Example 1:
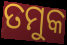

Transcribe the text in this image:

ତମୁକ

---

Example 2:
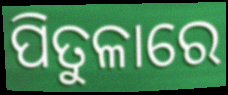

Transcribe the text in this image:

ପିତୁଳାରେ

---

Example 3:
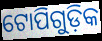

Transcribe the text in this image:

ଟୋପିଗୁଡ଼ିକ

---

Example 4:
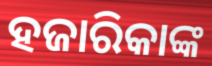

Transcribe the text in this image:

ହଜାରିକାଙ୍କ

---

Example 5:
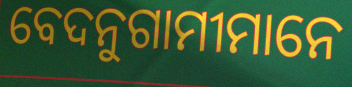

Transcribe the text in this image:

ବେଦନୁଗାମୀମାନେ